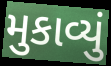
મુકાવ્યું